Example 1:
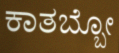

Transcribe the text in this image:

ಕಾತಬ್ಬೋ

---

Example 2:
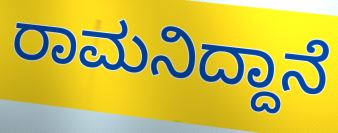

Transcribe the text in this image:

ರಾಮನಿದ್ದಾನೆ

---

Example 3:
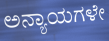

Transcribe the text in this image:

ಅನ್ಯಾಯಗಳೇ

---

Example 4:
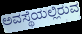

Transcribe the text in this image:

ಅವಸ್ಥೆಯಲ್ಲಿರುವ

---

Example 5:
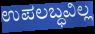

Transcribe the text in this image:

ಉಪಲಬ್ಧವಿಲ್ಲ